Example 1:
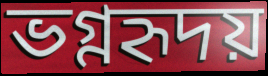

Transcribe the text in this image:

ভগ্নহৃদয়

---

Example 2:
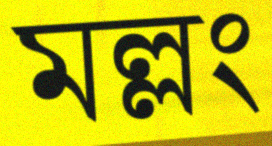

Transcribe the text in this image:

মল্লং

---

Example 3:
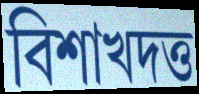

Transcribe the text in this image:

বিশাখদত্ত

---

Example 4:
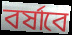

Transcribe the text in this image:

বর্ষাবে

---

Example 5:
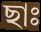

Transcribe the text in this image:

ছাঃ